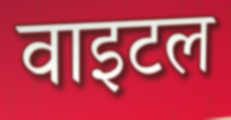
वाइटल